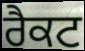
ਰੈਕਟ